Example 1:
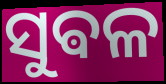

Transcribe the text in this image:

ସୁଵଳ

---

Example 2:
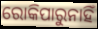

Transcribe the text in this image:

ରୋକିପାରୁନାହିଁ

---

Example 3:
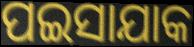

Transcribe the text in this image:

ପଇସାଯାକ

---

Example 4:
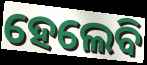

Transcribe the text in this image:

ହେଲେବି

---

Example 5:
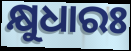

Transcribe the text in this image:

କ୍ଷୁଧାରଃ